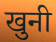
खुनी